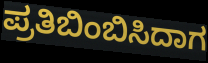
ಪ್ರತಿಬಿಂಬಿಸಿದಾಗ